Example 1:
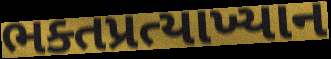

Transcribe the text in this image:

ભક્તપ્રત્યાખ્યાન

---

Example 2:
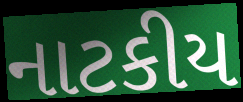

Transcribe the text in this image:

નાટકીય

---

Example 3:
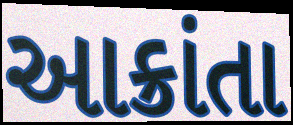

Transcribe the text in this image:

આક્રાંતા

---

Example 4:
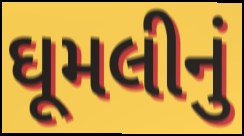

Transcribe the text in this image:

ઘૂમલીનું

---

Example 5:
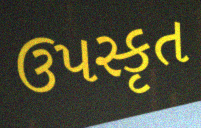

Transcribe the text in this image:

ઉપસ્કૃત